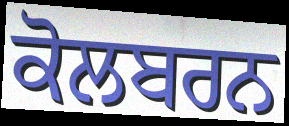
ਕੋਲਬਰਨ